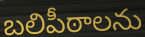
బలిపీఠాలను